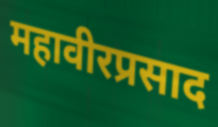
महावीरप्रसाद